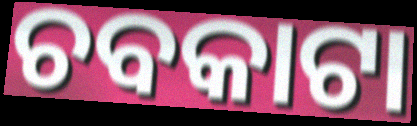
ଚବକାଟା